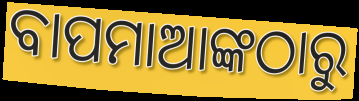
ବାପମାଆଙ୍କଠାରୁ